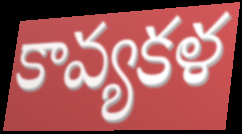
కావ్యకళ